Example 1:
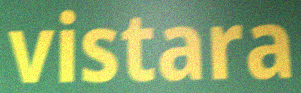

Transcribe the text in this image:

vistara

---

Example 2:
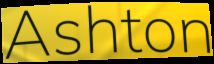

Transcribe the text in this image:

Ashton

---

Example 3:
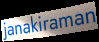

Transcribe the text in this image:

janakiraman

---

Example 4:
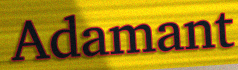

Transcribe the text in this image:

Adamant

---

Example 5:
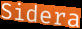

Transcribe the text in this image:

Sidera